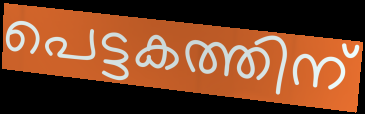
പെട്ടകത്തിന്